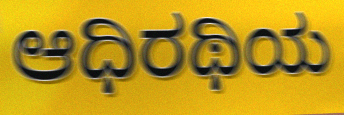
ಆಧಿರಥಿಯ